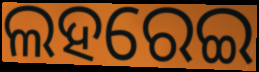
ଲହରେଇ